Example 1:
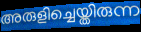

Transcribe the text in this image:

അരുളിച്ചെയ്തിരുന്ന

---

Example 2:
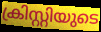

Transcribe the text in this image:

ക്രിസ്റ്റിയുടെ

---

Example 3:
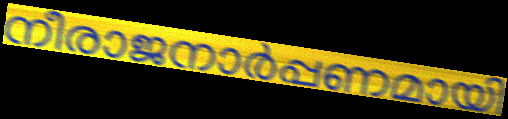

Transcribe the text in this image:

നീരാജനാർപ്പണമായി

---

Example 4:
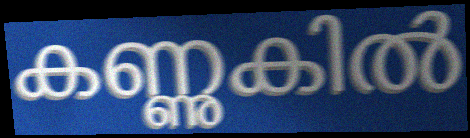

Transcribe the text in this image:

കണ്ണുകിൽ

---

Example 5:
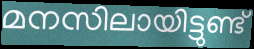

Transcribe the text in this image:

മനസിലായിട്ടുണ്ട്